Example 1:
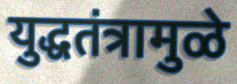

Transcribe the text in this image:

युद्धतंत्रामुळे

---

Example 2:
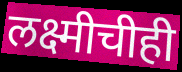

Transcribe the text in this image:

लक्ष्मीचीही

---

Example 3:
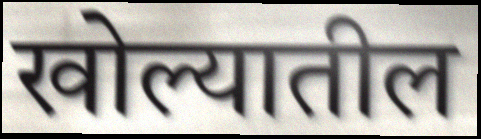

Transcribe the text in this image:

खोल्यातील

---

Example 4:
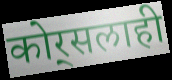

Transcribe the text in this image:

कोर्सलाही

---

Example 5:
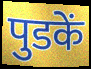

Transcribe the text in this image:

पुडकें